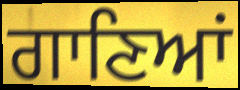
ਗਾਣਿਆਂ